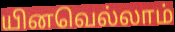
யினவெல்லாம்